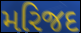
મરિજદ